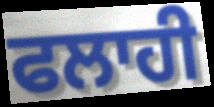
ਫਲਾਹੀ